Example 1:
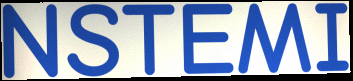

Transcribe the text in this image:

NSTEMI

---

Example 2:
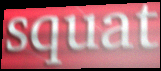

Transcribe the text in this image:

squat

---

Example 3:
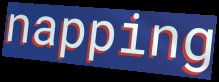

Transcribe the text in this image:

napping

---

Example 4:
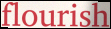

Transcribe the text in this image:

flourish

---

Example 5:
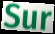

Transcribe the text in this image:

Sur